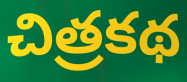
చిత్రకథ